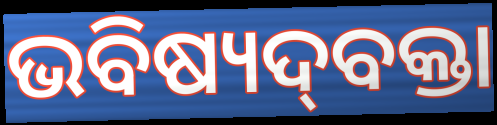
ଭବିଷ୍ୟଦ୍‌ବକ୍ତା